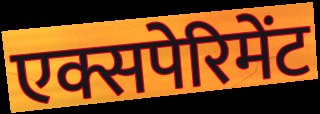
एक्सपेरिमेंट